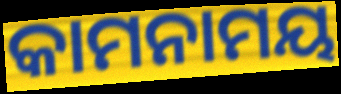
କାମନାମୟ